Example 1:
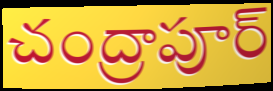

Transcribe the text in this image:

చంద్రాపూర్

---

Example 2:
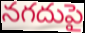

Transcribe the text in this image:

నగదుపై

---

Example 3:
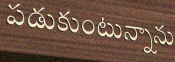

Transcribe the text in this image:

పడుకుంటున్నాను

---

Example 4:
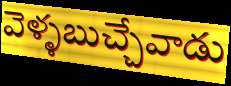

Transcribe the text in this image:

వెళ్ళబుచ్చేవాడు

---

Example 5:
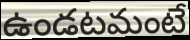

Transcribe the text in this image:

ఉండటమంటే